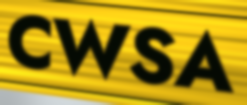
CWSA